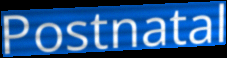
Postnatal